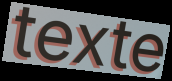
texte